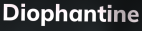
Diophantine